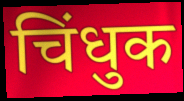
चिंधुक